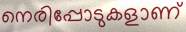
നെരിപ്പോടുകളാണ്